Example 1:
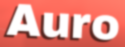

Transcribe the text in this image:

Auro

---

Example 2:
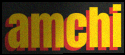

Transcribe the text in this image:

amchi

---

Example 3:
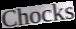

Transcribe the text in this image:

Chocks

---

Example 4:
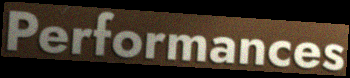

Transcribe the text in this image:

Performances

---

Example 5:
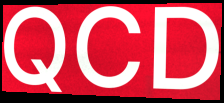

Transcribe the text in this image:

QCD